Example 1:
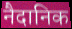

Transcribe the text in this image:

नैदानिक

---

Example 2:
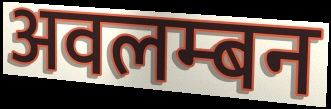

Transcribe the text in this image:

अवलम्बन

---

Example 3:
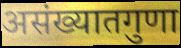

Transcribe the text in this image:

असंख्यातगुणा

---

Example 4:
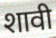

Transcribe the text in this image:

शावी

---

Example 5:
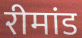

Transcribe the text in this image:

रीमांड